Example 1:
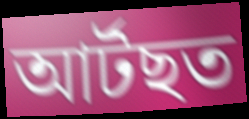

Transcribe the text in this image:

আৰ্টছত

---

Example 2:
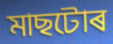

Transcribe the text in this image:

মাছটোৰ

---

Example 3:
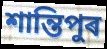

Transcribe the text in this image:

শান্তিপুৰ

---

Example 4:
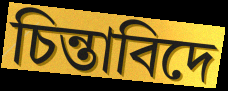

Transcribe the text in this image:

চিন্তাবিদে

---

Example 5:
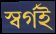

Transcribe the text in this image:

স্বৰ্গই